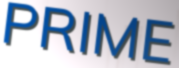
PRIME